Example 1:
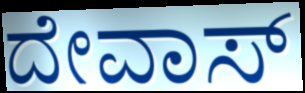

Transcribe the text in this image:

ದೇವಾಸ್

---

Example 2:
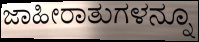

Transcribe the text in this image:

ಜಾಹೀರಾತುಗಳನ್ನೂ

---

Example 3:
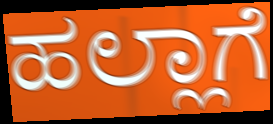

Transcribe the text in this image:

ಹಲ್ಲಾಗೆ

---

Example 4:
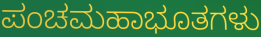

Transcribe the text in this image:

ಪಂಚಮಹಾಭೂತಗಳು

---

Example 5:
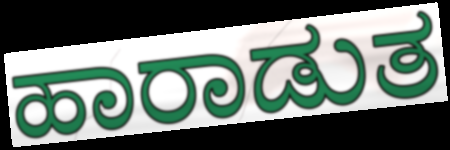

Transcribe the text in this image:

ಹಾರಾಡುತ